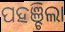
ପହଞ୍ଚିଲା